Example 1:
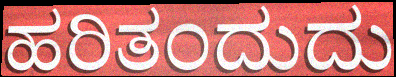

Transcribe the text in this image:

ಹರಿತಂದುದು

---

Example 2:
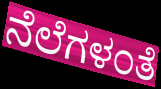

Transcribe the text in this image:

ನೆಲೆಗಳಂತೆ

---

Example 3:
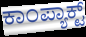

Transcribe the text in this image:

ಕಾಂಪ್ಯಾಕ್ಟ್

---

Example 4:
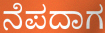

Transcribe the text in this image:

ನೆಪದಾಗ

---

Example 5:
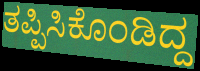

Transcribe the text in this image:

ತಪ್ಪಿಸಿಕೊಂಡಿದ್ದ